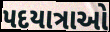
પદયાત્રાઓ